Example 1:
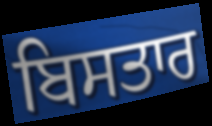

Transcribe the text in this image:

ਬਿਸਤਾਰ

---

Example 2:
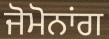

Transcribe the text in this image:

ਜੋਮੋਨਾਂਗ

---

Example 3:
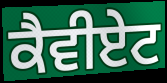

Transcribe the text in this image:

ਕੈਵੀਏਟ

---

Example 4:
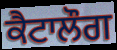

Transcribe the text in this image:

ਕੈਟਾਲੌਗ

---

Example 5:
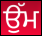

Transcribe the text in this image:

ਉੱਮ